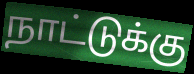
நாட்டுக்கு